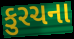
કુરચના